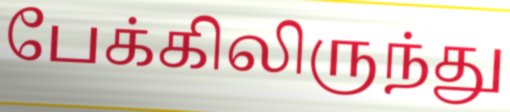
பேக்கிலிருந்து